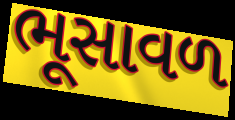
ભૂસાવળ